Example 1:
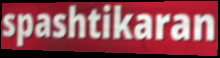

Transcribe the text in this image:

spashtikaran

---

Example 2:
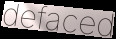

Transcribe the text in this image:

defaced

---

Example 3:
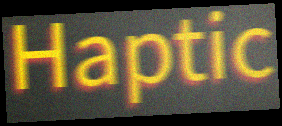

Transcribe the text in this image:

Haptic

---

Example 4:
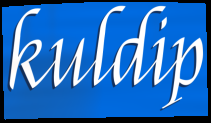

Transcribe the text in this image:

kuldip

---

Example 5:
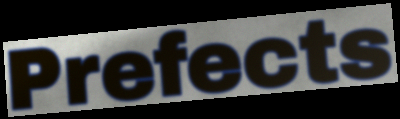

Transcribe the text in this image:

Prefects